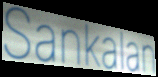
Sankalan